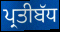
ਪ੍ਰਤੀਬੱਧ